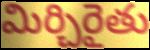
మిర్చిరైతు